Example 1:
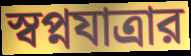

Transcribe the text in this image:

স্বপ্নযাত্রার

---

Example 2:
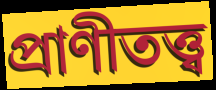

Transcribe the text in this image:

প্রাণীতত্ত্ব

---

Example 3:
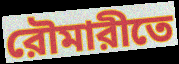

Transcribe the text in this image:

রৌমারীতে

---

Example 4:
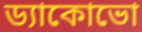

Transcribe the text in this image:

ড্যাকোভো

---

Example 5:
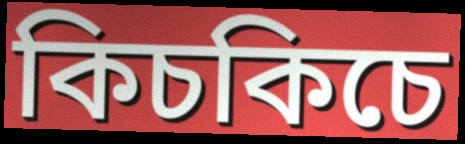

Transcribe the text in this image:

কিচকিচে